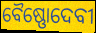
ବୈଷ୍ଣୋଦେବୀ